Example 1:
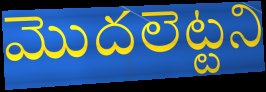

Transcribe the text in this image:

మొదలెట్టని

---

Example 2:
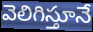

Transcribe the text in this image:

వెలిగిస్తూనే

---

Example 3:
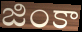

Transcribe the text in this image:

జింకా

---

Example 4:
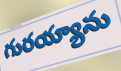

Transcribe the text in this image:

గురయ్యాను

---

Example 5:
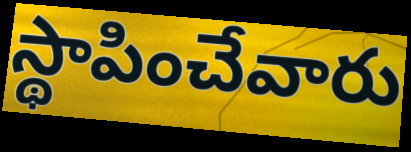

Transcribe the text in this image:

స్థాపించేవారు